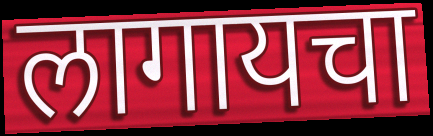
लागायचा